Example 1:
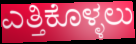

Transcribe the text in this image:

ಎತ್ತಿಕೊಳ್ಳಲು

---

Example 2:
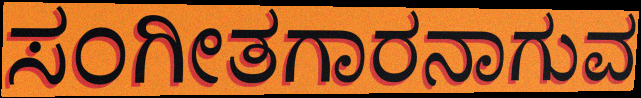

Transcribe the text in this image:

ಸಂಗೀತಗಾರನಾಗುವ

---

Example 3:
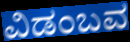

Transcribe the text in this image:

ವಿಡಂಬವ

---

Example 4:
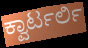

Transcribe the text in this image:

ಕ್ವಾರ್ಟರ್ಲಿ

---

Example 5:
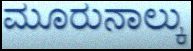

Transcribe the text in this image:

ಮೂರುನಾಲ್ಕು